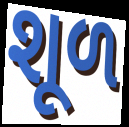
શૂળ